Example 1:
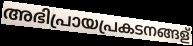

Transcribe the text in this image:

അഭിപ്രായപ്രകടനങ്ങള്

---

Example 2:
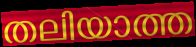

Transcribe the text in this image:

തലിയാത്ത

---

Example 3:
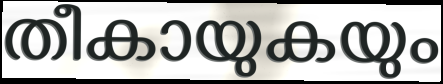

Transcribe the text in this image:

തീകായുകയും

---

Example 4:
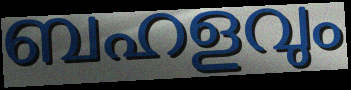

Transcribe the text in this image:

ബഹളവും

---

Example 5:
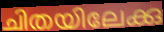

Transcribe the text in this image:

ചിതയിലേക്കു